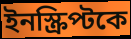
ইনস্ক্রিপ্টকে